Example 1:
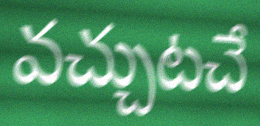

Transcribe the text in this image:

వచ్చుటచే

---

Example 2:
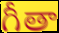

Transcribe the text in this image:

గీతా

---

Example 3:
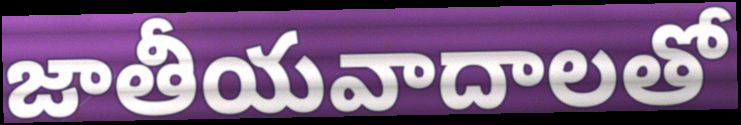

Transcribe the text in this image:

జాతీయవాదాలతో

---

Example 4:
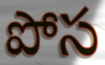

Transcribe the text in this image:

పోస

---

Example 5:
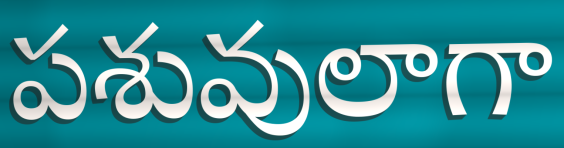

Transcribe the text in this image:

పశువులాగా